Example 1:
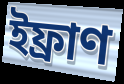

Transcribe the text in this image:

ইফ্ৰাণ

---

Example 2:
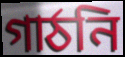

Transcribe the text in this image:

গাঠনি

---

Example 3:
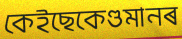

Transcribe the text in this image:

কেইছেকেণ্ডমানৰ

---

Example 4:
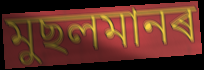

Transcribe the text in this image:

মুছলমানৰ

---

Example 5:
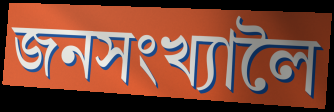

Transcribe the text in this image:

জনসংখ্যালৈ